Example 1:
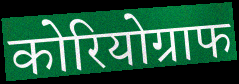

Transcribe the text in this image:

कोरियोग्राफ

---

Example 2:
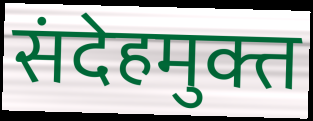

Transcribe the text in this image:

संदेहमुक्त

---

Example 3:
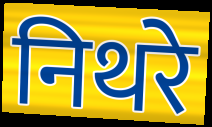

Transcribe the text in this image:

निथरे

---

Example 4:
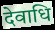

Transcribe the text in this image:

देवाधि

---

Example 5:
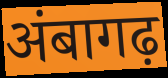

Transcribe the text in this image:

अंबागढ़